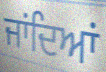
ਜਾਂਦਿਆਂ